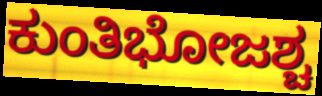
ಕುಂತಿಭೋಜಶ್ಚ